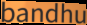
bandhu